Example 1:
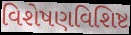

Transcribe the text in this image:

વિશેષણવિશિષ્ટ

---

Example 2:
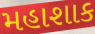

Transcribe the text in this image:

મહાશાક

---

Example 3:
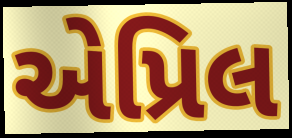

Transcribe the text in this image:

એપ્રિલ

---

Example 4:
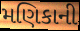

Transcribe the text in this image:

મણિકાની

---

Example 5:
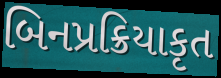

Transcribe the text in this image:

બિનપ્રક્રિયાકૃત